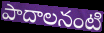
పాదాలనంటి